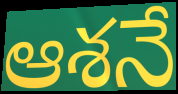
ఆశనే